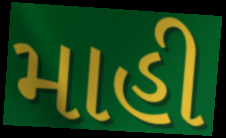
માહી